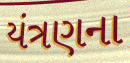
યંત્રણના